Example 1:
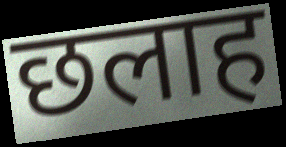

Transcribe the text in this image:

छलाह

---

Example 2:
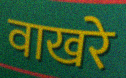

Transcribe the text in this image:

वाखरे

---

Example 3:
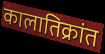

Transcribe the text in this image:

कालातिक्रांत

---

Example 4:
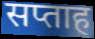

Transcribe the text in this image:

सप्‍ताह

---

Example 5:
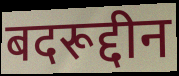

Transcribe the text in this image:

बदरूद्दीन